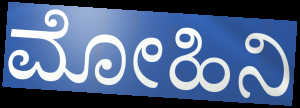
ಮೋಹಿನಿ